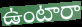
ఉంటారా